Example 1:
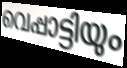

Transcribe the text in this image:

വെപ്പാട്ടിയും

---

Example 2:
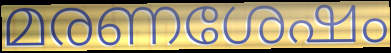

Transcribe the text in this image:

മരണശേഷം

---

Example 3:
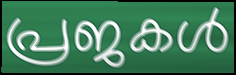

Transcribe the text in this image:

പ്രജകൾ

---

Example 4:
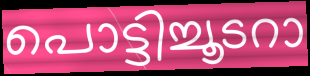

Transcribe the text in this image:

പൊട്ടിച്ചൂടറാ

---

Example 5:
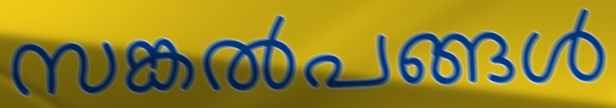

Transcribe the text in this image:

സങ്കൽപങ്ങൾ